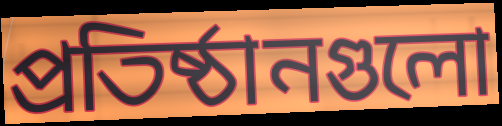
প্রতিষ্ঠানগুলো